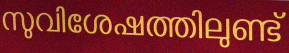
സുവിശേഷത്തിലുണ്ട്